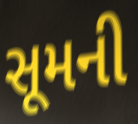
સૂમની